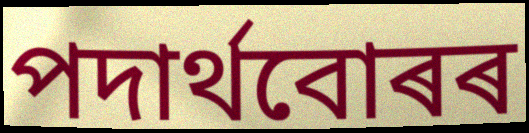
পদাৰ্থবোৰৰ